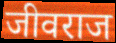
जीवराज